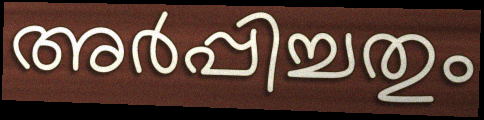
അർപ്പിച്ചതും